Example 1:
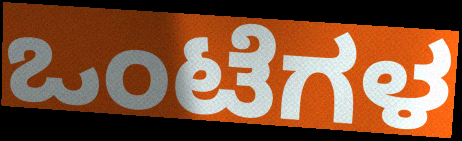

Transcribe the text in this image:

ಒಂಟೆಗಳ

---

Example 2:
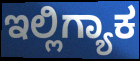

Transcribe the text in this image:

ಇಲ್ಲಿಗ್ಯಾಕ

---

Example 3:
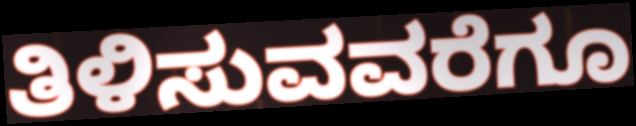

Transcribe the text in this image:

ತಿಳಿಸುವವರೆಗೂ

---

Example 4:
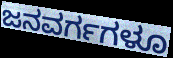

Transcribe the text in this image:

ಜನವರ್ಗಗಳೂ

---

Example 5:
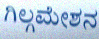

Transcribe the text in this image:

ಗಿಲ್ಗಮೇಶನ